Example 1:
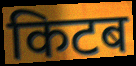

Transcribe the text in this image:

किटब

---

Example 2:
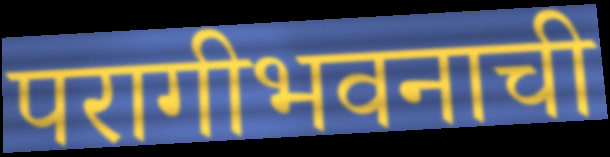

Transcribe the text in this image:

परागीभवनाची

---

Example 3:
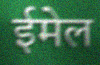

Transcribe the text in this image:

ईमेल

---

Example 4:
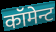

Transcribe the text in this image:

कॉमेन्ट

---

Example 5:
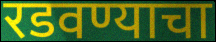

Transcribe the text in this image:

रडवण्याचा